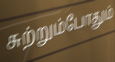
சுற்றும்போதும்